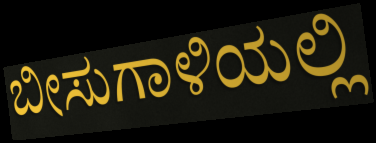
ಬೀಸುಗಾಳಿಯಲ್ಲಿ